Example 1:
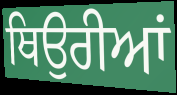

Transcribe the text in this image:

ਥਿਉਰੀਆਂ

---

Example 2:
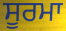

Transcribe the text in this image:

ਸੂਰਮਾ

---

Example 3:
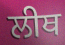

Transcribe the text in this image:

ਲੀਥ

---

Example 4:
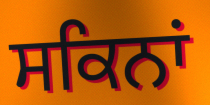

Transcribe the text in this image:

ਸਕਿਨਾਂ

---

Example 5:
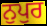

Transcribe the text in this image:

ਨੁਪੁਰ